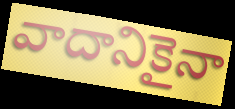
వాదానికైనా